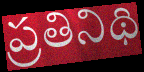
ప్రతినిథి